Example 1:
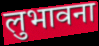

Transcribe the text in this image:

लुभावना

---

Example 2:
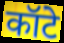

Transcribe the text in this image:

कॉटे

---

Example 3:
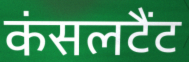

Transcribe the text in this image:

कंसलटैंट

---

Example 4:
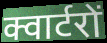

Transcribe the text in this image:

क्वार्टरों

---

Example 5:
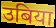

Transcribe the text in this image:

उबिया